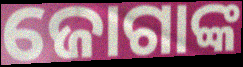
ଜୋଗାଙ୍କ